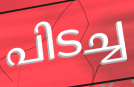
പിടച്ച